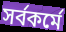
সর্বকর্মে